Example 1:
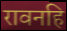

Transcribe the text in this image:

रावनहि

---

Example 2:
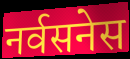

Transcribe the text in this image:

नर्वसनेस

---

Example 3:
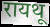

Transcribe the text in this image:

रायथू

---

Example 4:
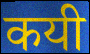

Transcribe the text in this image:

कयी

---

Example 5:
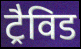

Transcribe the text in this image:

ट्रैविड